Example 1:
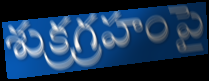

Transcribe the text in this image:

శుక్రగ్రహంపై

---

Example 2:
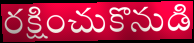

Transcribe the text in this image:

రక్షించుకొనుడి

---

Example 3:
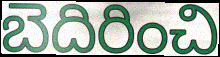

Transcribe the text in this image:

బెదిరించి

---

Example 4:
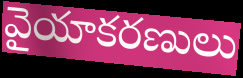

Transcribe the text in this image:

వైయాకరణులు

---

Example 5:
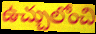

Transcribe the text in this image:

ఉచ్చులోంచి